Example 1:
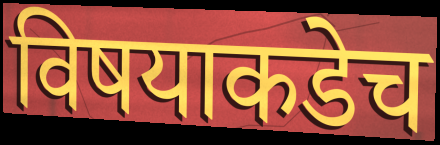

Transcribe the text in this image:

विषयाकडेच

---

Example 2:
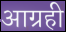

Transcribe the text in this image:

आग्रही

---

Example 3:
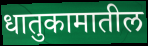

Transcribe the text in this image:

धातुकामातील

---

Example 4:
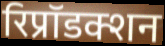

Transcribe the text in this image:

रिप्रॉडक्शन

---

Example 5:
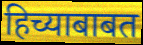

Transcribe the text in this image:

हिच्याबाबत